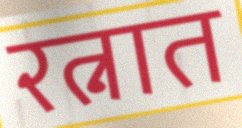
रत्नात